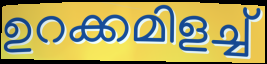
ഉറക്കമിളച്ച്